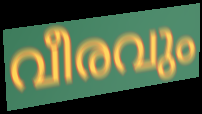
വീരവും